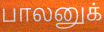
பாலனுக்